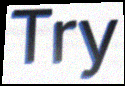
Try